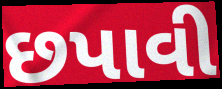
છપાવી